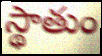
స్థాతుం